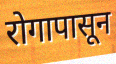
रोगापासून